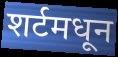
शर्टमधून